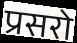
प्रसरो